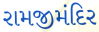
રામજીમંદિર